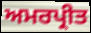
ਅਮਰਪ੍ਰੀਤ